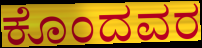
ಕೊಂದವರ